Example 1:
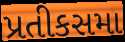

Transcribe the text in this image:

પ્રતીકસમા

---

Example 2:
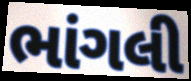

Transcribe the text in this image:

ભાંગલી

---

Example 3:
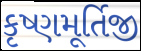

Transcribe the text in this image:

કૃષ્ણમૂર્તિજી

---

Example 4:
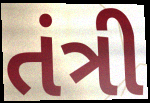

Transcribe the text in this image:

તંત્રી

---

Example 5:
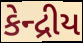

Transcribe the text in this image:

કેન્દ્રીય